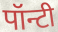
पॉन्टी